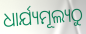
ଧାର୍ଯ୍ୟମୂଲ୍ୟଠୁ